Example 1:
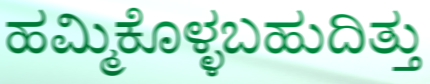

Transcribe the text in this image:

ಹಮ್ಮಿಕೊಳ್ಳಬಹುದಿತ್ತು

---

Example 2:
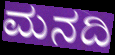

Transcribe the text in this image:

ಮನದಿ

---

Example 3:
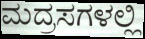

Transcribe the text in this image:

ಮದ್ರಸಗಳಲ್ಲಿ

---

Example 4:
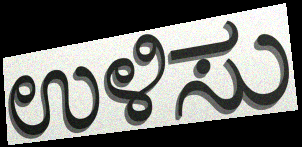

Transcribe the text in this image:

ಉಳಿಸು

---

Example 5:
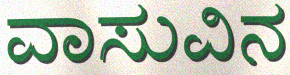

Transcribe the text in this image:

ವಾಸುವಿನ